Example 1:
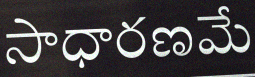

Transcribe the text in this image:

సాధారణమే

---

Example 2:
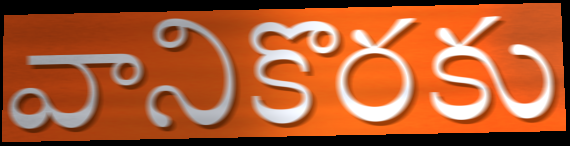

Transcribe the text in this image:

వానికొరకు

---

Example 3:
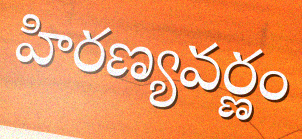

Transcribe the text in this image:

హిరణ్యవర్ణం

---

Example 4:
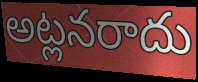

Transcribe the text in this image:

అట్లనరాదు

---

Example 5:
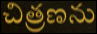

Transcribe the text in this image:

చిత్రణను